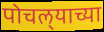
पोचल्याच्या